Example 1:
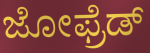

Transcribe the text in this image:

ಜೋಫ್ರೆಡ್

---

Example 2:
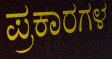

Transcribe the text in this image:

ಪ್ರಕಾರಗಳ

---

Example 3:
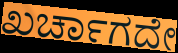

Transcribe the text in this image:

ಖರ್ಚಾಗದೇ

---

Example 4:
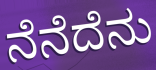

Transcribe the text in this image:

ನೆನೆದೆನು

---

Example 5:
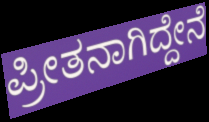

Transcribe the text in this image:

ಪ್ರೀತನಾಗಿದ್ದೇನೆ